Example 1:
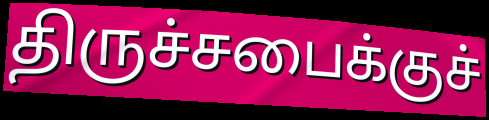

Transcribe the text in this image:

திருச்சபைக்குச்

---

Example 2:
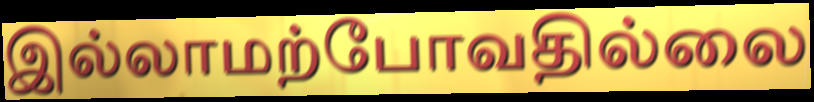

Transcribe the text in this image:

இல்லாமற்போவதில்லை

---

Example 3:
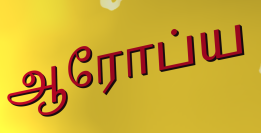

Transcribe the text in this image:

ஆரோப்ய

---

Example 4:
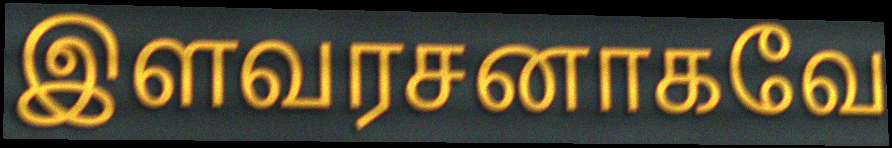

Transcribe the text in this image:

இளவரசனாகவே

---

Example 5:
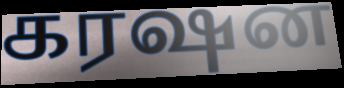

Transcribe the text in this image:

கரஷன